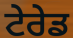
ਟੇਰੇਡ